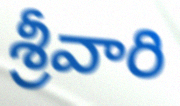
శ్రీవారి